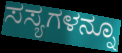
ಸಸ್ಯಗಳನ್ನೂ